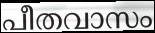
പീതവാസം